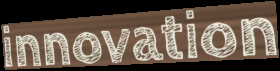
innovation